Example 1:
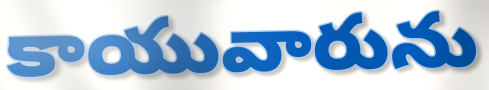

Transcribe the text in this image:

కాయువారును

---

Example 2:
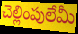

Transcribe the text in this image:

చెల్లింపులేమీ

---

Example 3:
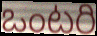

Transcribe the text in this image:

ఒంటరి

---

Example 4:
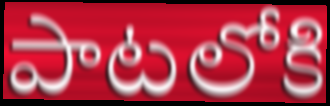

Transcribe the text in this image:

పాటలోకి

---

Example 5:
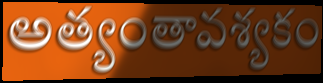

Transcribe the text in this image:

అత్యంతావశ్యకం